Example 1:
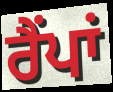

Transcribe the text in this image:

ਰੈਂਪਾਂ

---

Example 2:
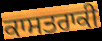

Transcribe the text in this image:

ਕਾਸਤਰਾਕੀ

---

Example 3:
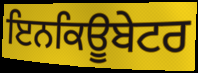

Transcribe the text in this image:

ਇਨਕਿਊਬੇਟਰ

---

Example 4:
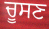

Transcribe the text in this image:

ਚੂਸਣ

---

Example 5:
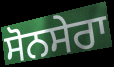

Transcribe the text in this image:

ਸੋਨਸੇਰਾ